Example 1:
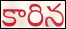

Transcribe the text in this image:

కారిన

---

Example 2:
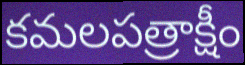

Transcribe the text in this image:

కమలపత్రాక్షీం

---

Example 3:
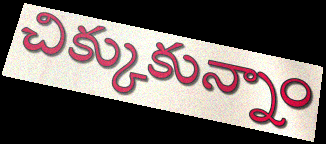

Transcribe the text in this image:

చిక్కుకున్నాం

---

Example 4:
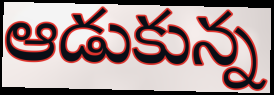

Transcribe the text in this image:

ఆడుకున్న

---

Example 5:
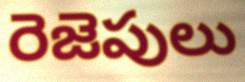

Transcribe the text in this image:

రెజెపులు